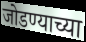
जोडण्याच्या